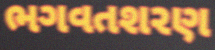
ભગવતશરણ